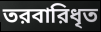
তরবারিধৃত